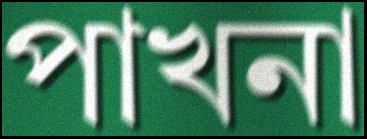
পাখনা